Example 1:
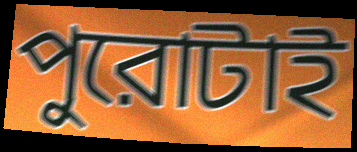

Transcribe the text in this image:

পুরোটাই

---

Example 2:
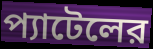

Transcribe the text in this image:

প্যাটেলের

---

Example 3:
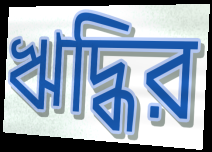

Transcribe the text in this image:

ঋদ্ধির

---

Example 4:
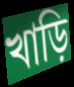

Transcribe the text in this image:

খাড়ি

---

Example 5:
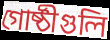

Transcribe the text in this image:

গোষ্ঠীগুলি